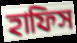
হাফিস